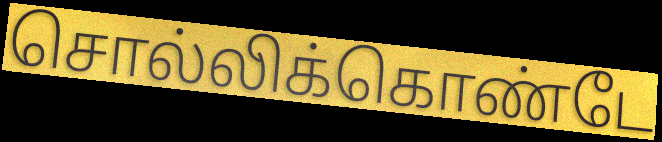
சொல்லிக்கொண்டே